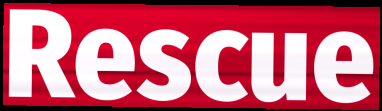
Rescue